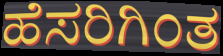
ಹೆಸರಿಗಿಂತ